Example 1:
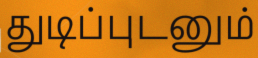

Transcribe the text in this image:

துடிப்புடனும்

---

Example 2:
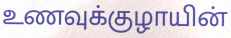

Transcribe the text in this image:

உணவுக்குழாயின்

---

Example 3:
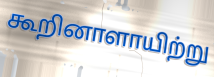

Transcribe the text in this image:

கூறினாளாயிற்று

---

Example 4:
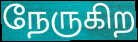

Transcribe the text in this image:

நேருகிற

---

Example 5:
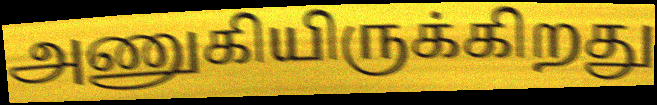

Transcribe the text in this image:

அணுகியிருக்கிறது